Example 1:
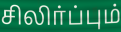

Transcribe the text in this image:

சிலிர்ப்பும்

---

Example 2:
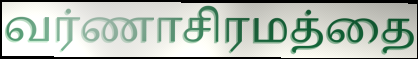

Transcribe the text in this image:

வர்ணாசிரமத்தை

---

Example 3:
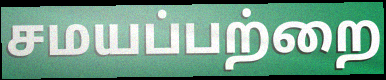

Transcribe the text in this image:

சமயப்பற்றை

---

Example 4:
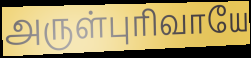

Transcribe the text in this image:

அருள்புரிவாயே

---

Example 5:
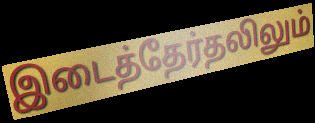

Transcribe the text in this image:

இடைத்தேர்தலிலும்